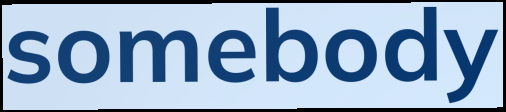
somebody